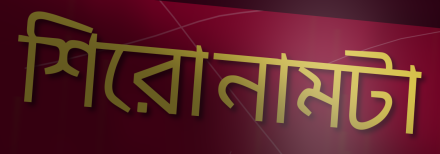
শিরোনামটা